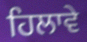
ਹਿਲਾਵੇ